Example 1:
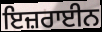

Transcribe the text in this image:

ਇਜ਼ਰਾਈਨ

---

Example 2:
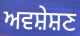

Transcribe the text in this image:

ਅਵਸ਼ੇਸ਼ਣ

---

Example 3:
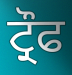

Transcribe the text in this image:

ਟ੍ਰੌਫ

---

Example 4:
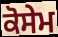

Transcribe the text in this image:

ਕੋਸੇਮ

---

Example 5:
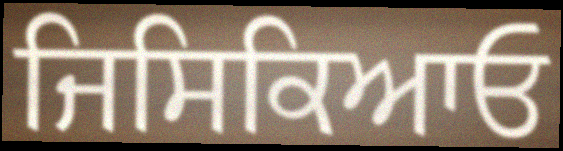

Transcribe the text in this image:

ਜਿਸਿਕਿਆਓ